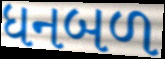
ધનબળ